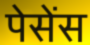
पेसेंस